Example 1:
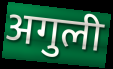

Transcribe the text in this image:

अगुली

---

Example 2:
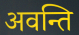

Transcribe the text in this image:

अवन्ति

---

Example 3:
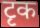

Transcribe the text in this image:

टृक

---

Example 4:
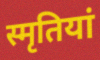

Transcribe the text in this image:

स्मृतियां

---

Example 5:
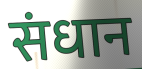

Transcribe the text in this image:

संधान